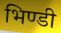
भिण्डी